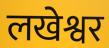
लखेश्वर